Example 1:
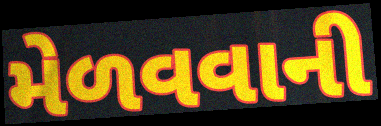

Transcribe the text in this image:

મેળવવાની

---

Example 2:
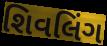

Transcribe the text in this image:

શિવલિંગ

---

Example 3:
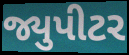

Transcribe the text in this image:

જ્યુપીટર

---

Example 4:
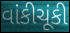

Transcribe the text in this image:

વાંકીચૂંકી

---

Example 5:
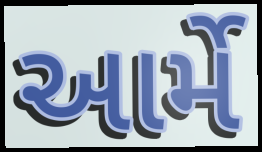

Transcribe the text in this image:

આર્મે